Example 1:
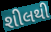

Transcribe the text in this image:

શીલથી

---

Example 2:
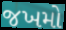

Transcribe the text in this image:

જખમો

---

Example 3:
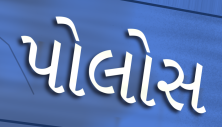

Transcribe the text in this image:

પોલોસ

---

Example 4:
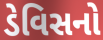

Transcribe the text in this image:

ડેવિસનો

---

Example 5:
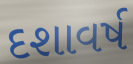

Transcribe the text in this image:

દશાવર્ષ